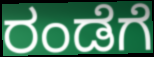
ರಂಡೆಗೆ